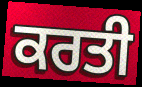
ਕਰਤੀ